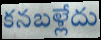
కనబళ్లేదు